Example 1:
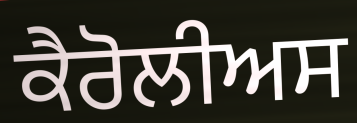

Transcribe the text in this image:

ਕੈਰੋਲੀਅਸ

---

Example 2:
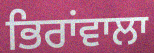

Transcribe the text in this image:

ਭਿਰਾਂਵਾਲਾ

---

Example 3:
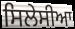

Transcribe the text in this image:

ਸਿਲੇਸੀਆ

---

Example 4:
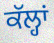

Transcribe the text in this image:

ਕੱਲ੍ਹਾਂ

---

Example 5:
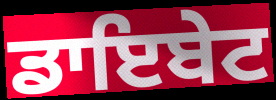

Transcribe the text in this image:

ਡਾਇਬੇਟ